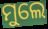
ମୁଲେ